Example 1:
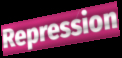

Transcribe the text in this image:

Repression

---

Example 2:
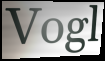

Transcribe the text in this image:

Vogl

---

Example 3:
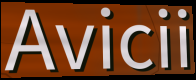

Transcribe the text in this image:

Avicii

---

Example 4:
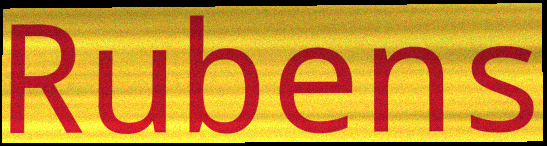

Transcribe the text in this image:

Rubens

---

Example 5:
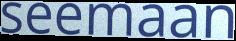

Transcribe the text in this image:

seemaan